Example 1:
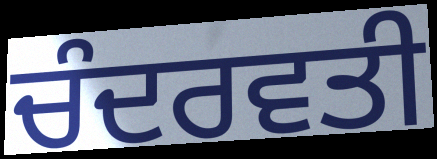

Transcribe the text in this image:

ਚੰਦਰਵਤੀ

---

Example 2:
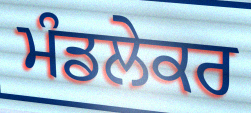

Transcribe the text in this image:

ਮੰਡਲੇਕਰ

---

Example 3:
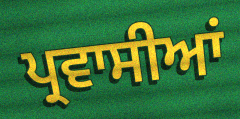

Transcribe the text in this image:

ਪ੍ਰਵਾਸੀਆਂ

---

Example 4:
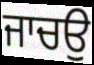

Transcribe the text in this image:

ਜਾਚਉ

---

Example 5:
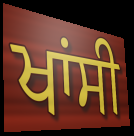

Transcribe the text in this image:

ਖਾਂਸੀ